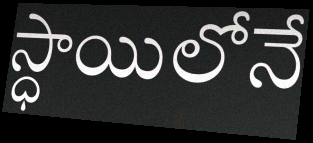
స్ధాయిలోనే